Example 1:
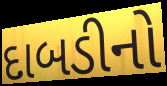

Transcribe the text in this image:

દાબડીનો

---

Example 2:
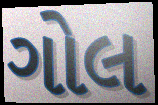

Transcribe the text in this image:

ગોલ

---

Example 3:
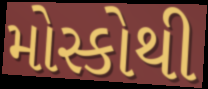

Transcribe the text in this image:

મોસ્કોથી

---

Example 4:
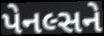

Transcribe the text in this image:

પેનલ્સને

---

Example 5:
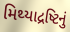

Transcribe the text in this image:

મિથ્યાદ્રષ્ટિનું